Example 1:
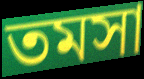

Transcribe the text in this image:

তমসা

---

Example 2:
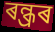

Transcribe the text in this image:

ৰন্ধ্ৰৰ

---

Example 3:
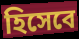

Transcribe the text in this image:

হিসেবে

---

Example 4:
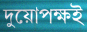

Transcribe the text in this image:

দুয়োপক্ষই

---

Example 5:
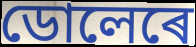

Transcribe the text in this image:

ডোলেৰে